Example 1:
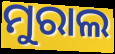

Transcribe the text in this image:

ମୁରାଲ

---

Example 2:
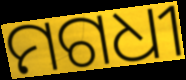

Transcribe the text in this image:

ମଗଧୀ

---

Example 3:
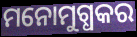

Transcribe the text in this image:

ମନୋମୁଗ୍ଧକର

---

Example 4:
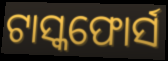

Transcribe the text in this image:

ଟାସ୍କଫୋର୍ସ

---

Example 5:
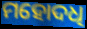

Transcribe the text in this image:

ମହୋଦଧି